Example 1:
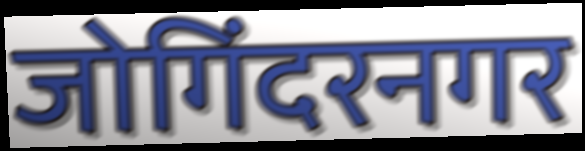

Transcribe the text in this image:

जोगिंदरनगर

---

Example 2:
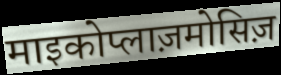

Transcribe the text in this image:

माइकोप्लाज़मोसिज़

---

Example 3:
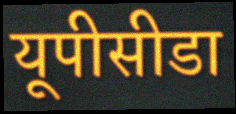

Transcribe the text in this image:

यूपीसीडा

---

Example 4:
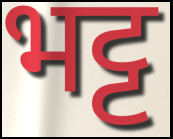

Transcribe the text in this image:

भट्ट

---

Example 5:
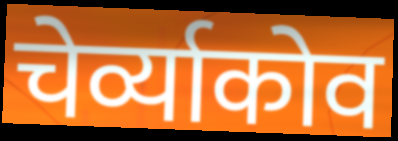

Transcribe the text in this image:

चेर्व्याकोव